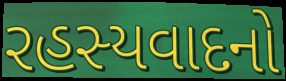
રહસ્યવાદનો